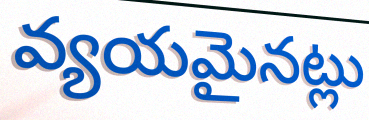
వ్యయమైనట్లు